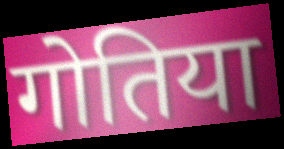
गोतिया